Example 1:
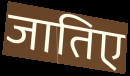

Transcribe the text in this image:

जातिए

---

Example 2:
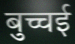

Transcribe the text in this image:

बुच्चई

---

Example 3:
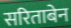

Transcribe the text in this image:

सरिताबेन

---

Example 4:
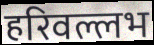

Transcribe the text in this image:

हरिवल्लभ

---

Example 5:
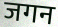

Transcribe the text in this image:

जगन